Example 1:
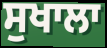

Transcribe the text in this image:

ਸੁਖਾਲਾ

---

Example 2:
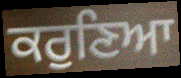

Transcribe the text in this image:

ਕਰੁਣਿਆ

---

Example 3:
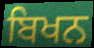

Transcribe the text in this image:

ਬਿਖਨ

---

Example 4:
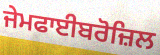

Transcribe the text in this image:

ਜੇਮਫਾਈਬਰੋਜ਼ਿਲ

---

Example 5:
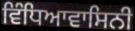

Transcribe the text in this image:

ਵਿੰਧਿਆਵਾਸਿਨੀ